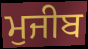
ਮੁਜੀਬ